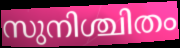
സുനിശ്ചിതം